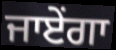
ਜਾਏਂਗਾ